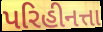
પરિહીનત્તા